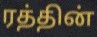
ரத்தின்